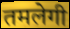
तमलेगी